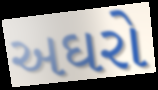
અઘરો